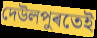
দেউলপুৰতেই